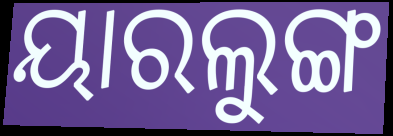
ୟାରଲୁଙ୍ଗ